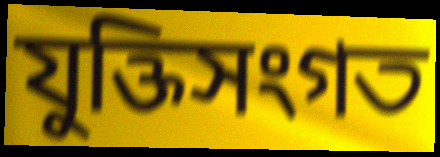
যুক্তিসংগত